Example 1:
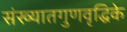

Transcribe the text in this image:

संख्यातगुणवृद्धिके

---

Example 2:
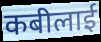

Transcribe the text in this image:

कबीलाई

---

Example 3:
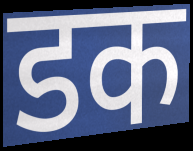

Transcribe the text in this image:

डक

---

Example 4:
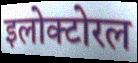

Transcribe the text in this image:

इलोक्टोरल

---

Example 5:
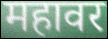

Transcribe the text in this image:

महावर